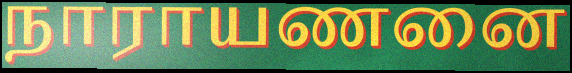
நாராயணனை